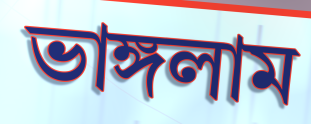
ভাঙ্গলাম